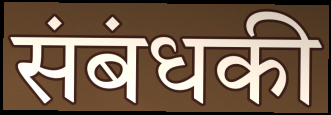
संबंधकी